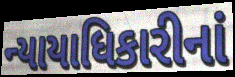
ન્યાયાધિકારીનાં